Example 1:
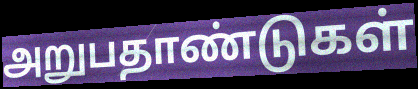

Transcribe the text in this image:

அறுபதாண்டுகள்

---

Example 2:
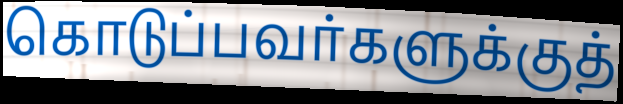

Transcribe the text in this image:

கொடுப்பவர்களுக்குத்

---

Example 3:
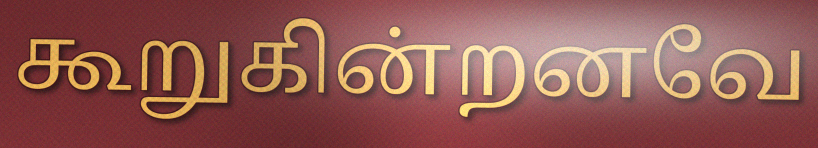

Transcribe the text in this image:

கூறுகின்றனவே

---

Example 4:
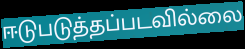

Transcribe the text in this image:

ஈடுபடுத்தப்படவில்லை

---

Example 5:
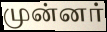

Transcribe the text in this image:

முன்னர்